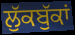
ਲੁੱਕਬੁੱਕਾਂ